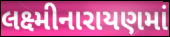
લક્ષ્મીનારાયણમાં